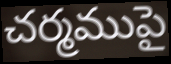
చర్మముపై